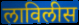
लाविलीस